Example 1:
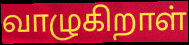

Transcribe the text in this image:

வாழுகிறாள்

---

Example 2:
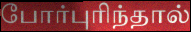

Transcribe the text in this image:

போர்புரிந்தால்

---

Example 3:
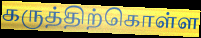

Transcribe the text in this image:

கருத்திற்கொள்ள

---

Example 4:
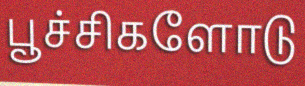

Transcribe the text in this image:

பூச்சிகளோடு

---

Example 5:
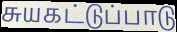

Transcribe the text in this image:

சுயகட்டுப்பாடு